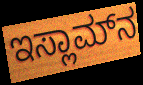
ಇಸ್ಲಾಮ್‌ನ